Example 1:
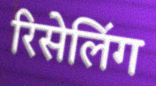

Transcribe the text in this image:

रिसेलिंग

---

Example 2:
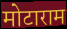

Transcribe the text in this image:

मोटाराम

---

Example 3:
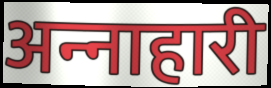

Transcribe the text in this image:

अन्नाहारी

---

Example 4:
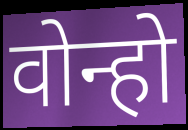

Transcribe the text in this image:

वोन्हो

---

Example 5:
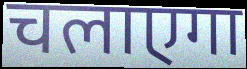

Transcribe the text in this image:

चलाएगा